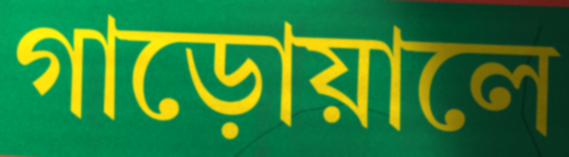
গাড়োয়ালে